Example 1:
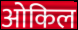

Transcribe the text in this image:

ओकिल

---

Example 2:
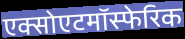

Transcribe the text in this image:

एक्सोएटमॉस्फेरिक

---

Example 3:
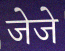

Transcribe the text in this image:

जेजे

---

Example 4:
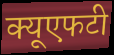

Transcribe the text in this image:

क्यूएफटी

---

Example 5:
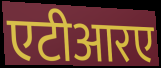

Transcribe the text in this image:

एटीआरए